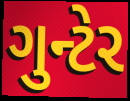
ગુન્ટેર